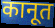
कानूत